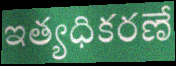
ఇత్యధికరణే